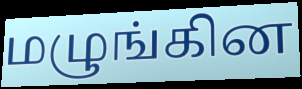
மழுங்கின